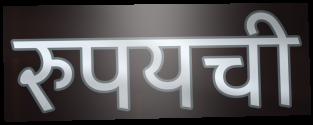
रुपयची